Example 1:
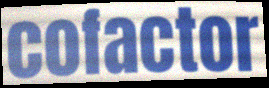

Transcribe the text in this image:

cofactor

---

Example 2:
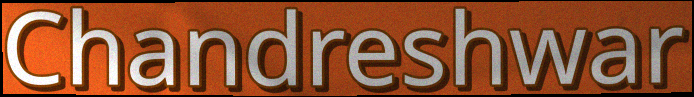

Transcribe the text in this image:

Chandreshwar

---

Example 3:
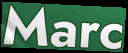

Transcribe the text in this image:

Marc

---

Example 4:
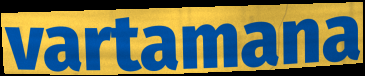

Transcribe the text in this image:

vartamana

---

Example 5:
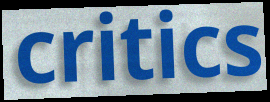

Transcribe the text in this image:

critics